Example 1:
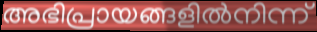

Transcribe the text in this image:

അഭിപ്രായങ്ങളിൽനിന്ന്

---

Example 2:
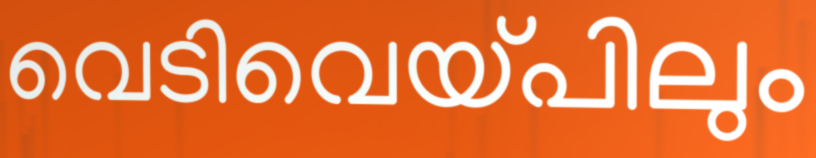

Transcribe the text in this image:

വെടിവെയ്പിലും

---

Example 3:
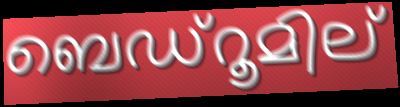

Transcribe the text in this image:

ബെഡ്റൂമില്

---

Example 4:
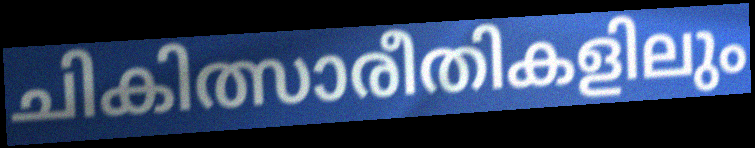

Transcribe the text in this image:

ചികിത്സാരീതികളിലും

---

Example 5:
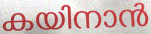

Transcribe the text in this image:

കയിനാൻ